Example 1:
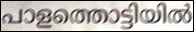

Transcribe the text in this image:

പാളത്തൊട്ടിയിൽ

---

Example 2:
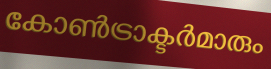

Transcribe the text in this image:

കോൺട്രാക്ടർമാരും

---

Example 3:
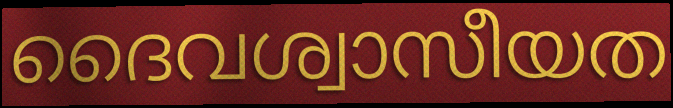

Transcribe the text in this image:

ദൈവശ്വാസീയത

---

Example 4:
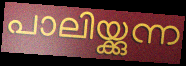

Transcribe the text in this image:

പാലിയ്ക്കുന്ന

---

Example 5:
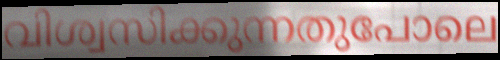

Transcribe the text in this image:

വിശ്വസിക്കുന്നതുപോലെ